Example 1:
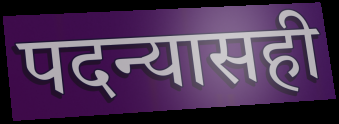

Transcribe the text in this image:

पदन्यासही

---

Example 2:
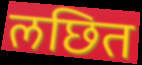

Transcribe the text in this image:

लछित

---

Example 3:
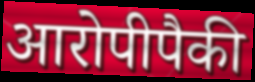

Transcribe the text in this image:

आरोपीपैकी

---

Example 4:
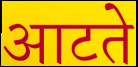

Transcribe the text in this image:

आटते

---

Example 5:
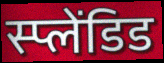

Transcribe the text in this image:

स्प्लेंडिड